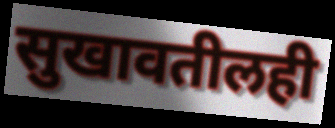
सुखावतीलही